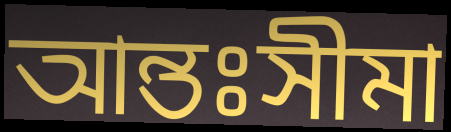
আন্তঃসীমা